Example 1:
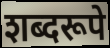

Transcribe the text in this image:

शब्दरूपे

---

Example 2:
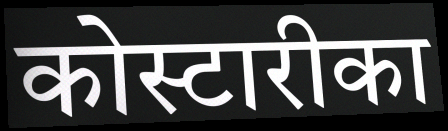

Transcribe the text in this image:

कोस्टारीका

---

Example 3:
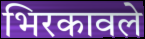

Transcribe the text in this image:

भिरकावले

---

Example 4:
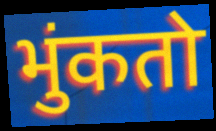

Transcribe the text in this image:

भुंकतो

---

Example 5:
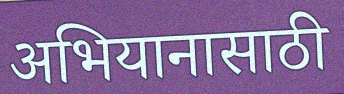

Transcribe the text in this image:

अभियानासाठी